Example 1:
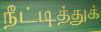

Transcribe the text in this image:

நீட்டித்துக்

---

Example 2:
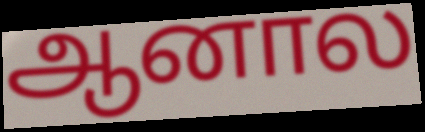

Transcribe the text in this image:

ஆனால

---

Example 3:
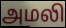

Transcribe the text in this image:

அமலி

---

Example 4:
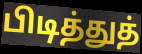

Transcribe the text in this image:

பிடித்துத்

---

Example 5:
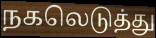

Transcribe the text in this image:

நகலெடுத்து